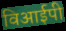
विआईपी